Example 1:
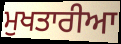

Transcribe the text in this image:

ਮੁਖਤਾਰੀਆ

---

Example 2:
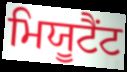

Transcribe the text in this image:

ਮਿਯੂਟੈਂਟ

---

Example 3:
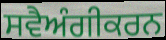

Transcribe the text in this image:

ਸਵੈਅੰਗੀਕਰਨ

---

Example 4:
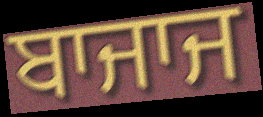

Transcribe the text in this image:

ਬਾਜਾਜ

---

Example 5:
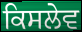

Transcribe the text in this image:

ਕਿਸਲੇਵ